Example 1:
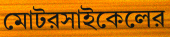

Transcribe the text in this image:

মোটরসাইকেলের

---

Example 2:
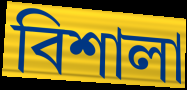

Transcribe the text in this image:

বিশালা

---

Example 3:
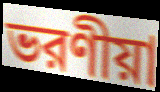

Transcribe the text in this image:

ভরণীয়া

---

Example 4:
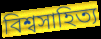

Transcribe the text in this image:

বিশ্বসাহিত্য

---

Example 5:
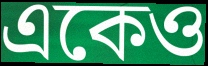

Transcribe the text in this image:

একেও